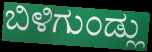
ಬಿಳಿಗುಂಡ್ಲು